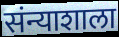
संन्याशाला